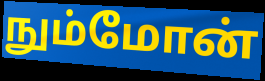
நும்மோன்